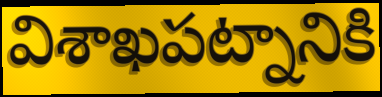
విశాఖపట్నానికి